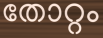
തോറ്റം